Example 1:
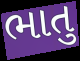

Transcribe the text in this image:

ભાતુ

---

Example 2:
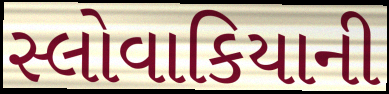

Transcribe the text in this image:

સ્લોવાકિયાની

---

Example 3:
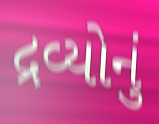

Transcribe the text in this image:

દ્રવ્યોનું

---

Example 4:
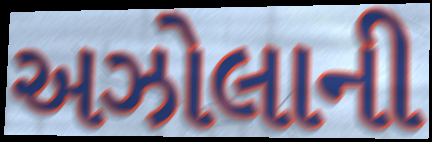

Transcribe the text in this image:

અઝોલાની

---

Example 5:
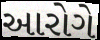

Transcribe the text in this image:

આરોગે